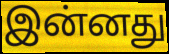
இன்னது